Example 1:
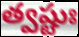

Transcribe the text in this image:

త్వష్టుః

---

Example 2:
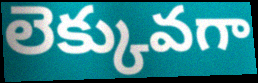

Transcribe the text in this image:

లెక్కువగా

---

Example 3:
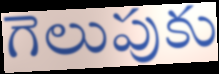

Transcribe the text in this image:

గెలుపుకు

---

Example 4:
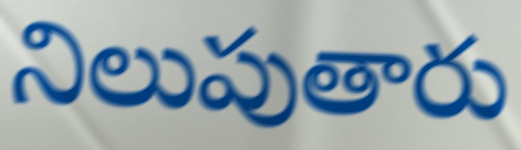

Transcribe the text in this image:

నిలుపుతారు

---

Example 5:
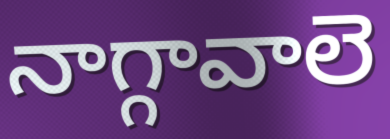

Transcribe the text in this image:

నాగ్గావాలె